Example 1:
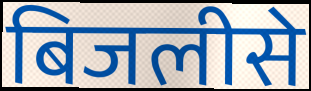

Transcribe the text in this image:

बिजलीसे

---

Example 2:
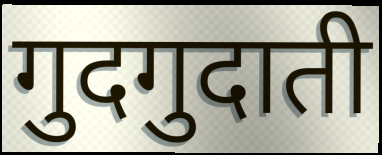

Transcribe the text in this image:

गुदगुदाती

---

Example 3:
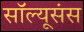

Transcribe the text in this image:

सॉल्यूसंस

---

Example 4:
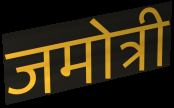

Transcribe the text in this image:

जमोत्री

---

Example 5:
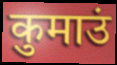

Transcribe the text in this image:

कुमाउं